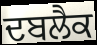
ਦਬਲੈਕ